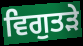
ਵਿਗੁਤੜੇ